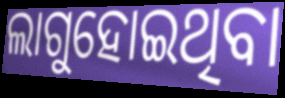
ଲାଗୁହୋଇଥିବା